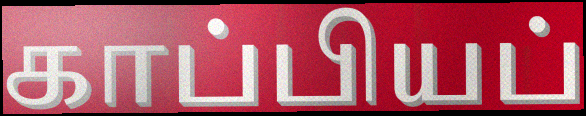
காப்பியப்